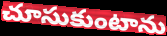
చూసుకుంటాను